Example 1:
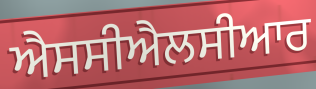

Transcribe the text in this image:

ਐਸਸੀਐਲਸੀਆਰ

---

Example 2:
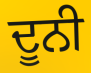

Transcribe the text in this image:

ਦੂਨੀ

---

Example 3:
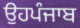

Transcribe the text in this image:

ਉਹਪੰਜਾਬ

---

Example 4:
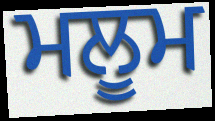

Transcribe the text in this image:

ਮਲੂਮ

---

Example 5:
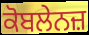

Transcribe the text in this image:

ਕੋਬਲੇਨਜ਼